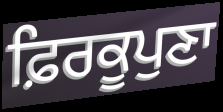
ਫ਼ਿਰਕੂਪੁਣਾ